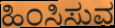
ಹಿಂಸಿಸುವ